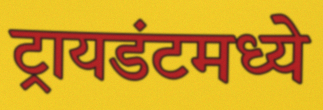
ट्रायडंटमध्ये